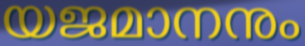
യജമാനനും